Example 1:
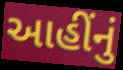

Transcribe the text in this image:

આહીંનું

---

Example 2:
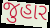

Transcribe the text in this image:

જુહાર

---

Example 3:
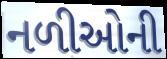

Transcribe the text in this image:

નળીઓની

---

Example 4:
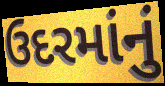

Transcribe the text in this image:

ઉદરમાંનું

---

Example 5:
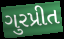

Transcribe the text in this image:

ગુરપ્રીત